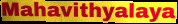
Mahavithyalaya